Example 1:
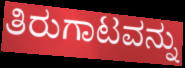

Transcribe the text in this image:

ತಿರುಗಾಟವನ್ನು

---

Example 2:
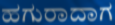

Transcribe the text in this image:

ಹಗುರಾದಾಗ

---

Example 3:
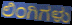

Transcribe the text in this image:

ಲಿಂಗಿಗಳು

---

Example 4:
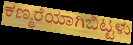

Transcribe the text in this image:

ಕಣ್ಮರೆಯಾಗಿಬಿಟ್ಟಳು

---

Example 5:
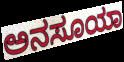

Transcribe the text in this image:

ಅನಸೂಯಾ